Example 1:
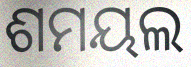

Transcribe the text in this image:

ଶମୟଲ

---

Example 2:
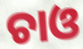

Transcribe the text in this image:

ଚାଓ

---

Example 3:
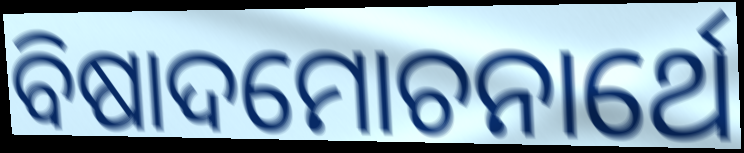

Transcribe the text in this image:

ବିଷାଦମୋଚନାର୍ଥେ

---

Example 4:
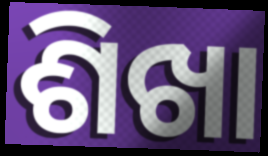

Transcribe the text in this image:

ଶିଖା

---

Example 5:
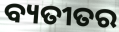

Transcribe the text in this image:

ବ୍ୟତୀତର